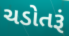
ચડોતરૂં